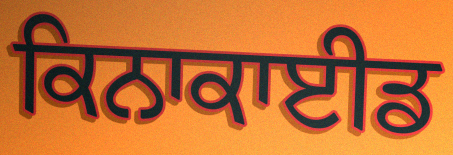
ਕਿਨਾਕਾਈਡ